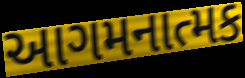
આગમનાત્મક